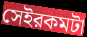
সেইরকমটা